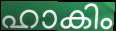
ഹാകിം